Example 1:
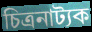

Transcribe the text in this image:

চিত্ৰনাট্যক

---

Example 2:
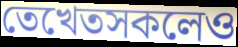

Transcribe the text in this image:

তেখেতসকলেও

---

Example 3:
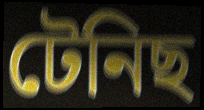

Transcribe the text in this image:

টেনিছ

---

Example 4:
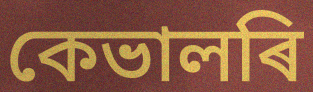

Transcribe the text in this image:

কেভালৰি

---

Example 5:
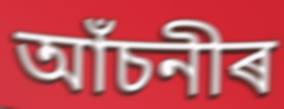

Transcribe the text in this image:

আঁচনীৰ